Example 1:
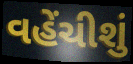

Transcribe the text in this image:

વહેંચીશું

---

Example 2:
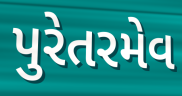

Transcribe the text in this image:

પુરેતરમેવ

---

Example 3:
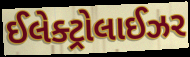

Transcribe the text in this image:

ઈલેક્ટ્રોલાઈઝર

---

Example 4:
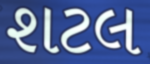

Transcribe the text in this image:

શટલ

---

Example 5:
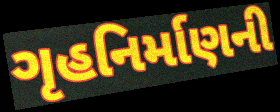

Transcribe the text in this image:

ગૃહનિર્માણની